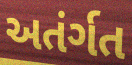
અતંર્ગત